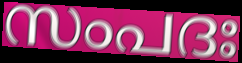
സംപദഃ